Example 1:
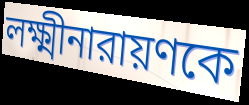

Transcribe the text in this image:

লক্ষ্মীনারায়ণকে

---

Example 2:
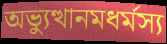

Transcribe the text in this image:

অভ্যুত্থানমধর্মস্য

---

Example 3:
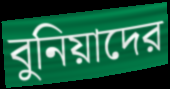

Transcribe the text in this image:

বুনিয়াদের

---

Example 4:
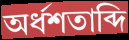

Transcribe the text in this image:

অর্ধশতাব্দি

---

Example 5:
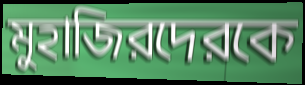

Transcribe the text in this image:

মুহাজিরদেরকে